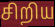
சிறிய